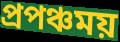
প্রপঞ্চময়